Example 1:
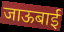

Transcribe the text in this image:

जाऊबाई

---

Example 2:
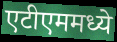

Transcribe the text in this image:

एटीएममध्ये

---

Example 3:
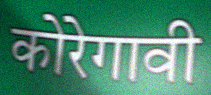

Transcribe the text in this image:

कोरेगावी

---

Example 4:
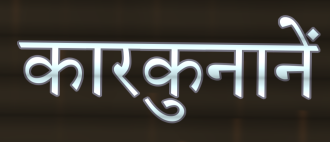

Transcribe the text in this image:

कारकुनानें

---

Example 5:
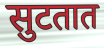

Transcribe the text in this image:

सुटतात